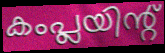
കംപ്ലയിന്റ്